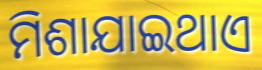
ମିଶାଯାଇଥାଏ